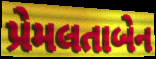
પ્રેમલતાબેન